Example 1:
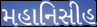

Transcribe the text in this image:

મહાનિસીહ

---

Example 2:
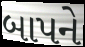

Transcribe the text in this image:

બાપને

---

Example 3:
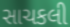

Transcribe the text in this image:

સાચકલી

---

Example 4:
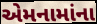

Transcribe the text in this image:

એમનામાંના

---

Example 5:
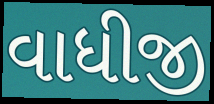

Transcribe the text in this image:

વાધીજી